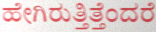
ಹೇಗಿರುತ್ತಿತ್ತೆಂದರೆ